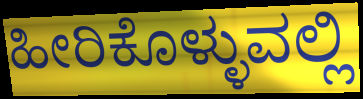
ಹೀರಿಕೊಳ್ಳುವಲ್ಲಿ